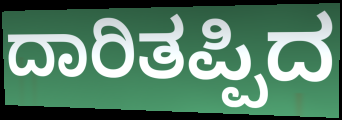
ದಾರಿತಪ್ಪಿದ